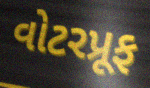
વોટરપ્રૂફ